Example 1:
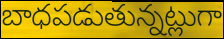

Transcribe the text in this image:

బాధపడుతున్నట్లుగా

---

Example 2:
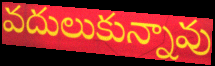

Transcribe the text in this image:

వదులుకున్నావు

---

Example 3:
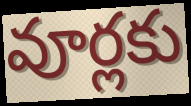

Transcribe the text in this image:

వూర్లకు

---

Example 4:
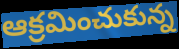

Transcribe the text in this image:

ఆక్రమించుకున్న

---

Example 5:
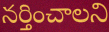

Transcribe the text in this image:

నర్తించాలని